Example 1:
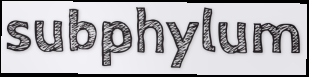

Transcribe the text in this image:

subphylum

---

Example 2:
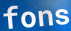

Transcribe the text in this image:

fons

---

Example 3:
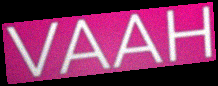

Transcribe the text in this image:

VAAH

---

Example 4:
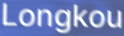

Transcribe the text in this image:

Longkou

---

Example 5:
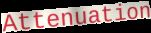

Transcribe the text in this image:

Attenuation